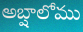
అబ్షాలోము